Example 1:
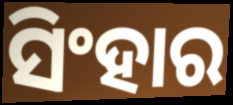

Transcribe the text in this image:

ସିଂହାର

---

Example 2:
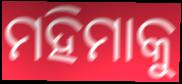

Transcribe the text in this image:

ମହିମାକୁ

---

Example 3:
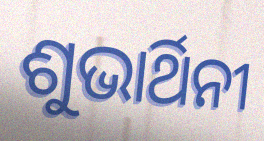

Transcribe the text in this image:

ଶୁଭାର୍ଥିନୀ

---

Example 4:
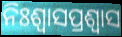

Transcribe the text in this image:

ନିଃଶ୍ୱାସପ୍ରଶ୍ୱାସ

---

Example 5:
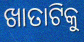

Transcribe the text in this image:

ଖାତାଟିକୁ